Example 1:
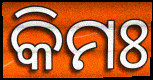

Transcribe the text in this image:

କିମଃ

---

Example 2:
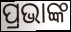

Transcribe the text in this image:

ପ୍ରଭାଙ୍କ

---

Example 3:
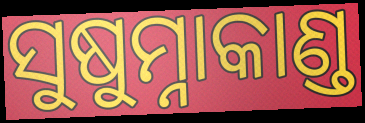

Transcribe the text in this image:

ସୁଷୁମ୍ନାକାଣ୍ଡ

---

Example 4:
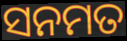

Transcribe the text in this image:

ସନମତ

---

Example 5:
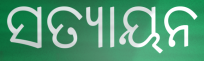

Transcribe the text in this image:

ସତ୍ୟାୟନ